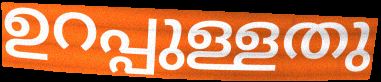
ഉറപ്പുള്ളതു